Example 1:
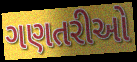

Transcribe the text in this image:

ગણતરીઓ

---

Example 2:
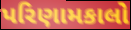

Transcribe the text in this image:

પરિણામકાલો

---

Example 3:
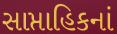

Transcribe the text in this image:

સાપ્તાહિકનાં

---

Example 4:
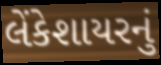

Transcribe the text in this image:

લેંકેશાયરનું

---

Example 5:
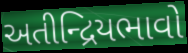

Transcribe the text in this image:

અતીન્દ્રિયભાવો